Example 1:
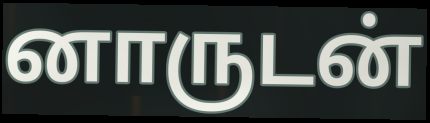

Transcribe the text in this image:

னாருடன்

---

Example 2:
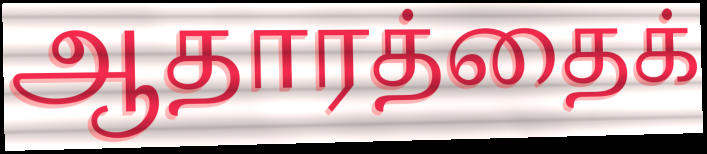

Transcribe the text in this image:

ஆதாரத்தைக்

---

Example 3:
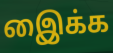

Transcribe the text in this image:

இைக்க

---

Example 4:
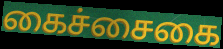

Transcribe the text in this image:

கைச்சைகை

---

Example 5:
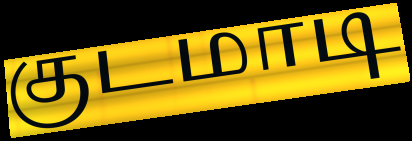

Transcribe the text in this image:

குடமாடி